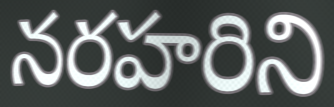
నరహరిని